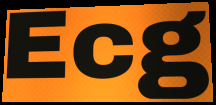
Ecg